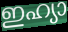
ഇഹ്യാ